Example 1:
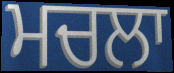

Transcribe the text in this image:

ਮਚਲਾ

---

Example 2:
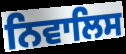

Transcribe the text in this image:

ਨਿਵਾਲਿਸ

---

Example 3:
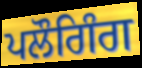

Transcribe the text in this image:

ਪਲੌਗਿੰਗ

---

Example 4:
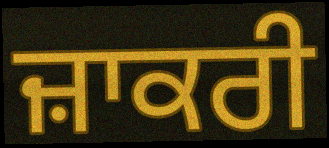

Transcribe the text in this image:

ਜ਼ਾਕਰੀ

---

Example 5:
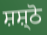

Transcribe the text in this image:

ਸ਼ਸ਼੍ਠੋ